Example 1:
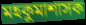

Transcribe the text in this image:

মহকুমাশাসক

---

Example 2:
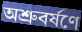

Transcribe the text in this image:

অশ্রুবর্ষণে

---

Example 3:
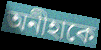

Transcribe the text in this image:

অনীহাকে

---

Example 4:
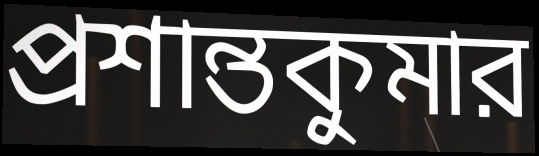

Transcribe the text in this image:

প্রশান্তকুমার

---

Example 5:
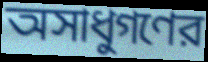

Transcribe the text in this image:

অসাধুগণের